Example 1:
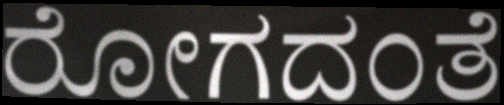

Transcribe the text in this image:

ರೋಗದಂತೆ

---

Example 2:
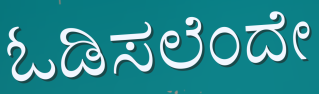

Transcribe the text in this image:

ಓಡಿಸಲೆಂದೇ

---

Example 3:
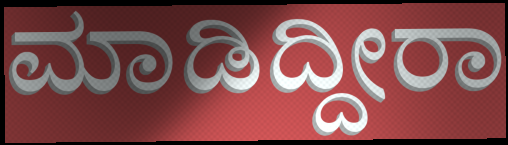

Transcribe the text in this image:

ಮಾಡಿದ್ದೀರಾ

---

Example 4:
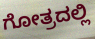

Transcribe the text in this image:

ಗೋತ್ರದಲ್ಲಿ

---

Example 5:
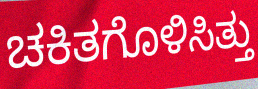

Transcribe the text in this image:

ಚಕಿತಗೊಳಿಸಿತ್ತು